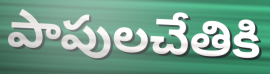
పాపులచేతికి